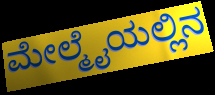
ಮೇಲ್ಮೈಯಲ್ಲಿನ